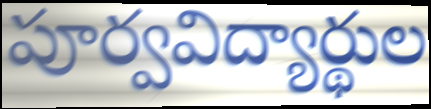
పూర్వవిద్యార్థుల